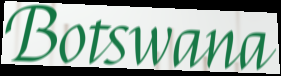
Botswana